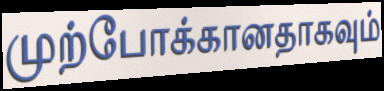
முற்போக்கானதாகவும்